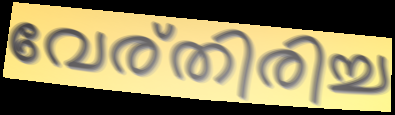
വേര്തിരിച്ച